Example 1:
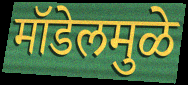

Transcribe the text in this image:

मॉडेलमुळे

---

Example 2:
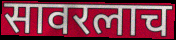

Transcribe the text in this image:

सावरलाच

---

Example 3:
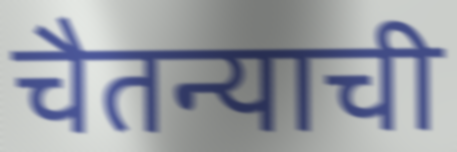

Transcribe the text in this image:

चैतन्याची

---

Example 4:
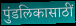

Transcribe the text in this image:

पुंडलिकासाठीं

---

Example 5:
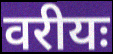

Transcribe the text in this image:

वरीयः